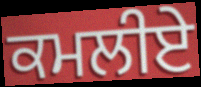
ਕਮਲੀਏ